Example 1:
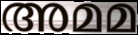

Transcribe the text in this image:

അമമ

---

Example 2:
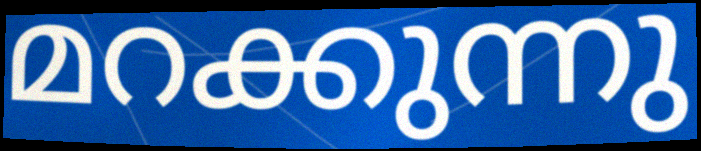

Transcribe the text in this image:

മറക്കുന്നു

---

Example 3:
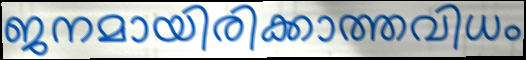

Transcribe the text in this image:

ജനമായിരിക്കാത്തവിധം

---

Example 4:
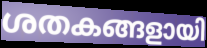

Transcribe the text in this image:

ശതകങ്ങളായി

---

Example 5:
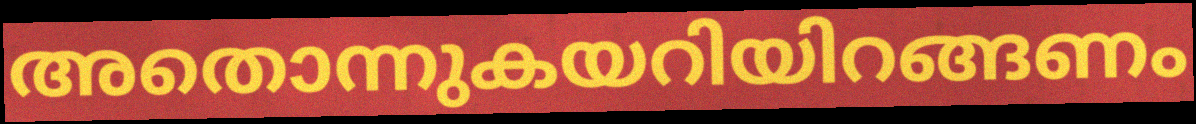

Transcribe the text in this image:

അതൊന്നുകയറിയിറങ്ങണം